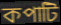
কপাটি